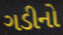
ગડીનો